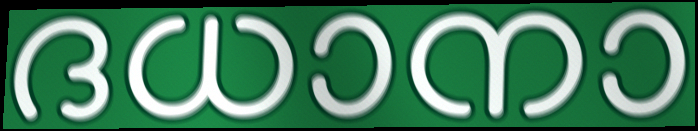
ദധാനാ